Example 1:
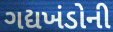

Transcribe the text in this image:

ગદ્યખંડોની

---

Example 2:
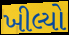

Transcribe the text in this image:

ખીલ્યો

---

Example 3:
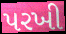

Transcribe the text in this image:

પરખી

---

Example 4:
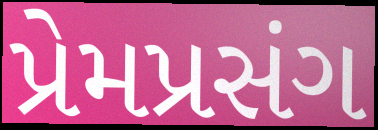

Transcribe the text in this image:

પ્રેમપ્રસંગ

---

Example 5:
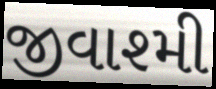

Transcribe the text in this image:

જીવાશ્મી